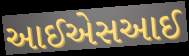
આઈએસઆઈ